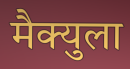
मैक्युला